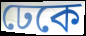
ঢেকে